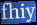
fhiy